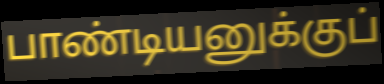
பாண்டியனுக்குப்